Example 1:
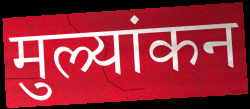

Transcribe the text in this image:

मुल्यांकन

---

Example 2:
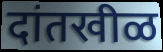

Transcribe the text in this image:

दांतखीळ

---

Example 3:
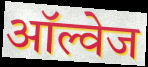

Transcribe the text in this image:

ऑल्वेज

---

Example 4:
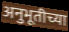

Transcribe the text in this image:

अनुभूतीच्या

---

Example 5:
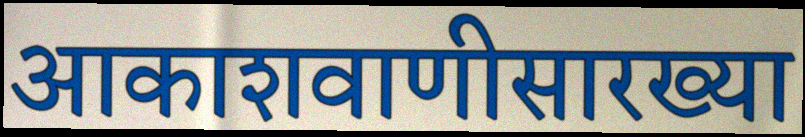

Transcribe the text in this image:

आकाशवाणीसारख्या